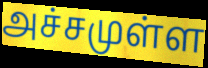
அச்சமுள்ள